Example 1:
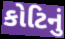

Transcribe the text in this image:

કોટિનું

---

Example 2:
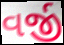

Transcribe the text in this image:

વર્જી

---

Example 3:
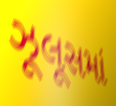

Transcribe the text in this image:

ઝૂલૂસમાં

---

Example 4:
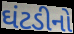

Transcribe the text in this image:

ઘંટડીનો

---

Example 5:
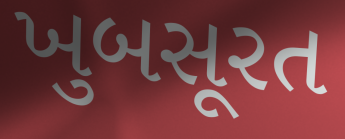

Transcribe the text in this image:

ખુબસૂરત